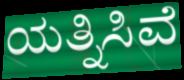
ಯತ್ನಿಸಿವೆ